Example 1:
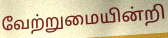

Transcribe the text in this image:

வேற்றுமையின்றி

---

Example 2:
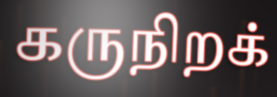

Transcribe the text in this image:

கருநிறக்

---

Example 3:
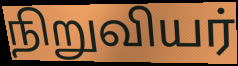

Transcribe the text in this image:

நிறுவியர்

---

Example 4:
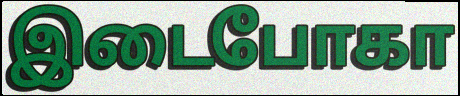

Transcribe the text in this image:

இடைபோகா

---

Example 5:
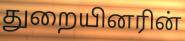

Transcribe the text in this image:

துறையினரின்